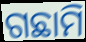
ଗଛାମି